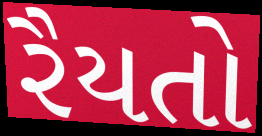
રૈયતો